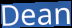
Dean